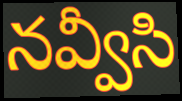
నవ్వీసి